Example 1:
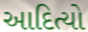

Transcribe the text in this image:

આદિત્યો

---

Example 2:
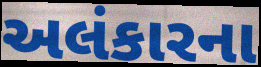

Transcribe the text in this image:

અલંકારના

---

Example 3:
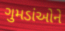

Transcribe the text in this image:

ગુમડાંઓને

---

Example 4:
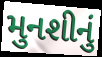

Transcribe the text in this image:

મુનશીનું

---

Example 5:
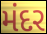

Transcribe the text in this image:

મંદર